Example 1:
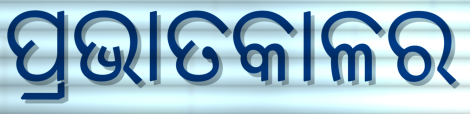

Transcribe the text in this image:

ପ୍ରଭାତକାଳର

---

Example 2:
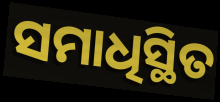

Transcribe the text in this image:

ସମାଧିସ୍ଥିତ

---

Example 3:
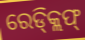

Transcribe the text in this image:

ରେଡ୍କ୍ଲିଫ୍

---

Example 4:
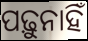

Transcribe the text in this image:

ପଢ଼ୁନାହିଁ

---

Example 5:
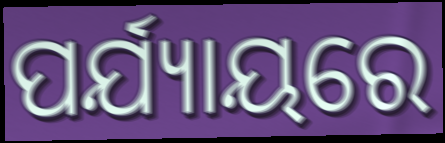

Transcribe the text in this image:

ପର୍ଯ୍ୟାୟରେ